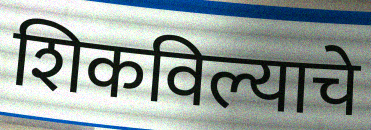
शिकविल्याचे